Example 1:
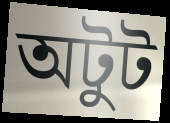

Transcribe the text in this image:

অটুট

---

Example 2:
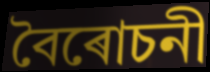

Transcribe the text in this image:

বৈৰোচনী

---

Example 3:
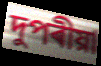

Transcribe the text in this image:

দুপৰীয়া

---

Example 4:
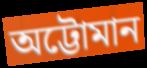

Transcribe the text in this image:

অট্টোমান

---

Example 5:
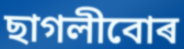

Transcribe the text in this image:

ছাগলীবোৰ